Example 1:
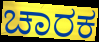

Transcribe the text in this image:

ಚಾರಕ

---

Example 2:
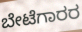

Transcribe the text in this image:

ಬೇಟೆಗಾರರ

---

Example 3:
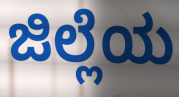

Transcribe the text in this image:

ಜಿಲ್ಲೆಯ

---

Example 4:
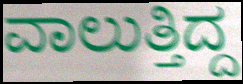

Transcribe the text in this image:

ವಾಲುತ್ತಿದ್ದ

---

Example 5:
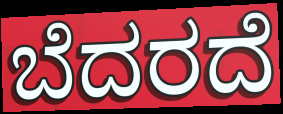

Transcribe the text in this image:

ಬೆದರದೆ